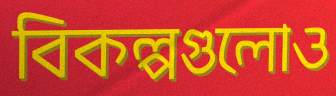
বিকল্পগুলোও